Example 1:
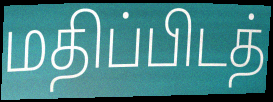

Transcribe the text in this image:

மதிப்பிடத்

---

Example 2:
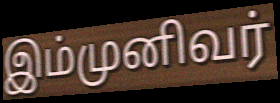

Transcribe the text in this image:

இம்முனிவர்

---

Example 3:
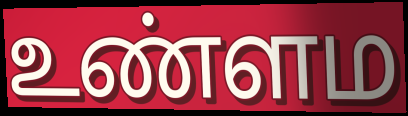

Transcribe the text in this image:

உண்ளம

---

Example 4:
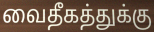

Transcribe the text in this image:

வைதீகத்துக்கு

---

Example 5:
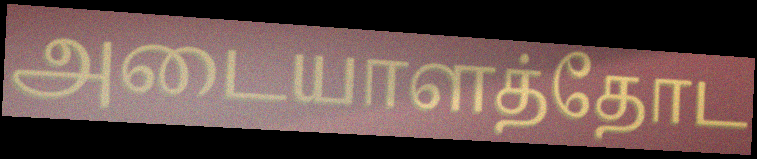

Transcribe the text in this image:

அடையாளத்தோட